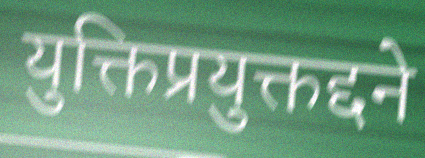
युक्तिप्रयुक्तद्दने